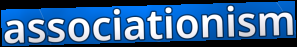
associationism